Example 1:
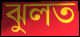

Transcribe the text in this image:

ঝুলত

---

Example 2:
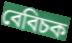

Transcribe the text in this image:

বেবিচক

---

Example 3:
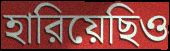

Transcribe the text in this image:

হারিয়েছিও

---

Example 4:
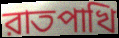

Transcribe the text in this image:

রাতপাখি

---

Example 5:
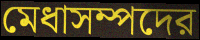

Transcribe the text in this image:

মেধাসম্পদের